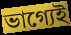
ভাগ্যেই